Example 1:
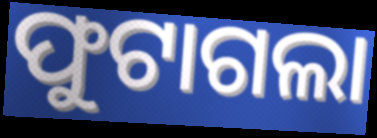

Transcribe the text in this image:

ଫୁଟାଗଲା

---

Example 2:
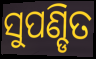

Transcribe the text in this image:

ସୁପଣ୍ଡିତ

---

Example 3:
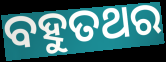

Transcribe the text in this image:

ବହୁତଥର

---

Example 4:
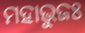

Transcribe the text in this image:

ମହାଭୁଜଃ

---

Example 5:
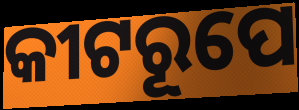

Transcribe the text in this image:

କୀଟରୂପେ